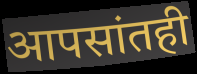
आपसांतही